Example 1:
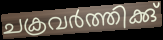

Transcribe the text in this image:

ചക്രവർത്തിക്കു്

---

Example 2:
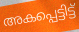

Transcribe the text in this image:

അകപ്പെട്ടിട്ട്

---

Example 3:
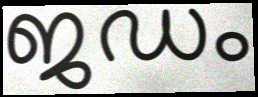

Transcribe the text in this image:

ജഡം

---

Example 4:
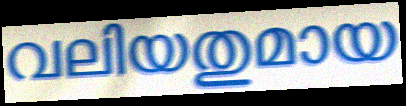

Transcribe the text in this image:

വലിയതുമായ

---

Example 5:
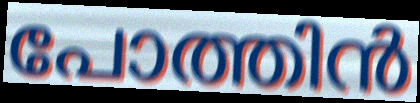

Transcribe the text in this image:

പോത്തിൻ